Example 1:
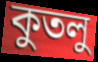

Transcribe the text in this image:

কুতলু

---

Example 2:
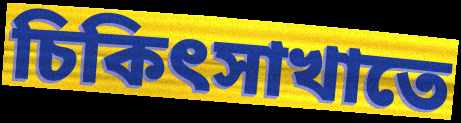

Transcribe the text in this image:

চিকিৎসাখাতে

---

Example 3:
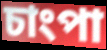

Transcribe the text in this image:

চাংপা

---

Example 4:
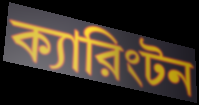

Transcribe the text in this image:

ক্যারিংটন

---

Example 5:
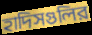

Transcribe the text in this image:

হাদিসগুলির